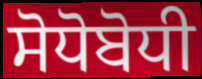
ਸੋਧੋਬੋਧੀ